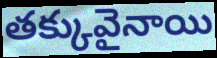
తక్కువైనాయి